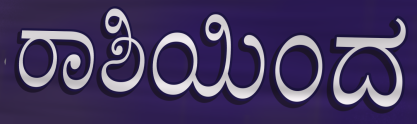
ರಾಶಿಯಿಂದ